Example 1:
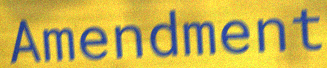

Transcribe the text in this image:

Amendment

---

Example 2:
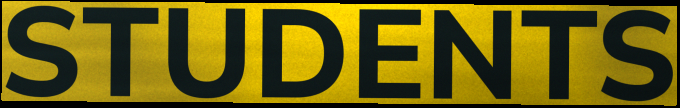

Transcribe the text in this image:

STUDENTS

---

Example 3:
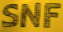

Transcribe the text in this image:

SNF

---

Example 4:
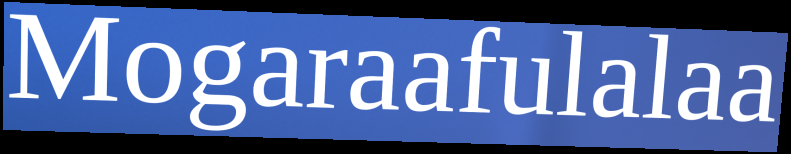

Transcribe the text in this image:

Mogaraafulalaa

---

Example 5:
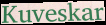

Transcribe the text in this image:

Kuveskar